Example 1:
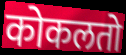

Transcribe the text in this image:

कोकलतो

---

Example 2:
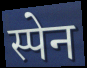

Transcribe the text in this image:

स्पेन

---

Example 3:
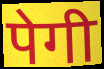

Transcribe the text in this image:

पेगी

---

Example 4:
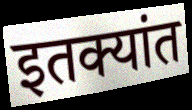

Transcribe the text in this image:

इतक्यांत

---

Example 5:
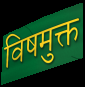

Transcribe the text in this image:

विषमुक्त